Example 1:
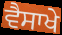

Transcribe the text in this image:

ਵੈਸਾਖੇ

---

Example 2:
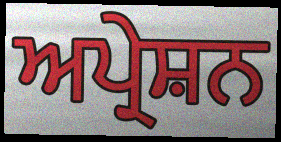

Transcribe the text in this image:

ਅਪ੍ਰੇਸ਼ਨ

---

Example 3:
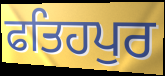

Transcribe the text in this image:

ਫਤਿਹਪੁਰ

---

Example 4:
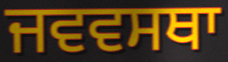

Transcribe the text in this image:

ਜਵਵਸਥਾ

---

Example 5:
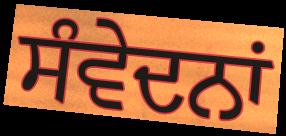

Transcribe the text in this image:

ਸੰਵੇਦਨਾਂ